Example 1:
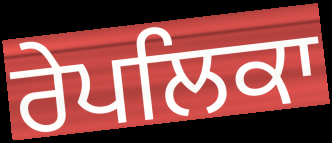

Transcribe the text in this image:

ਰੇਪਲਿਕਾ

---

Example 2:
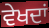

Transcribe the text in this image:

ਵੇਖਦਾਂ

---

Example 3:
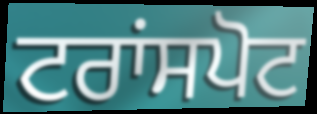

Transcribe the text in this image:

ਟਰਾਂਸਪੋਟ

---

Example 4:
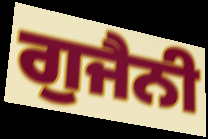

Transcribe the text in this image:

ਗੁਜੈਨੀ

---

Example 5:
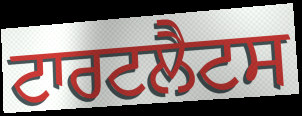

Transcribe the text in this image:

ਟਾਰਟਲੈਟਸ